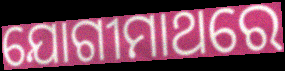
ଯୋଗୀମାଥରେ